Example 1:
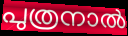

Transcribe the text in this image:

പുത്രനാൽ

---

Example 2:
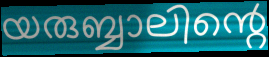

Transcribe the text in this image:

യരുബ്ബാലിന്റെ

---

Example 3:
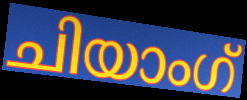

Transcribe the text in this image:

ചിയാംഗ്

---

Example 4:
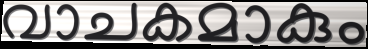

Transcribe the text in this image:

വാചകമാകും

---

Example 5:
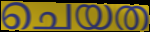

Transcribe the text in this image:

ചെയത